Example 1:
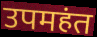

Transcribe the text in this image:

उपमहंत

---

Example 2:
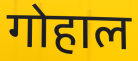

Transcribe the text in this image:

गोहाल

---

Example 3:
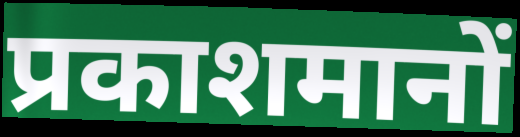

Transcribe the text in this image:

प्रकाशमानों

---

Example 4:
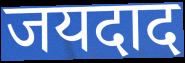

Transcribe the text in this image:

जयदाद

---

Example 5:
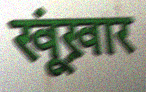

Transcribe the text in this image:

खूंख़ार